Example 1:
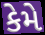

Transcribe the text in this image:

કેમે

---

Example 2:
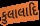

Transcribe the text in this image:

કુલાલાદિ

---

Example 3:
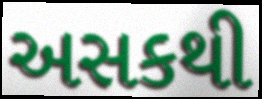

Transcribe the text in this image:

અસકથી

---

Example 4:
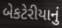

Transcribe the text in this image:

બેકટેરીયાનું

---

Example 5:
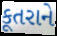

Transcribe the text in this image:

કૂતરાને